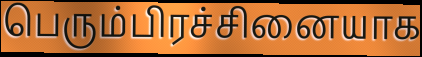
பெரும்பிரச்சினையாக